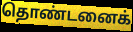
தொண்டனைக்